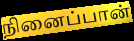
நினைப்பான்